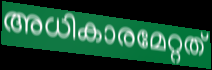
അധികാരമേറ്റത്